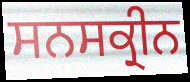
ਸਨਸਕ੍ਰੀਨ